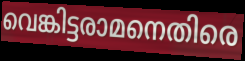
വെങ്കിട്ടരാമനെതിരെ